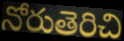
నోరుతెరిచి